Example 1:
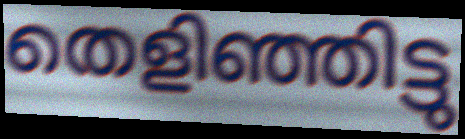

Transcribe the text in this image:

തെളിഞ്ഞിട്ടു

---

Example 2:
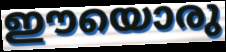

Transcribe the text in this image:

ഈയൊരു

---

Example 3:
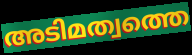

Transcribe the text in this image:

അടിമത്വത്തെ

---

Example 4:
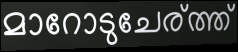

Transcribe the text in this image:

മാറോടുചേര്ത്ത്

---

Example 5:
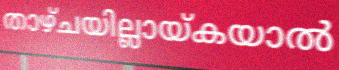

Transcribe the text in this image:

താഴ്ചയില്ലായ്കയാൽ